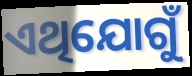
ଏଥିଯୋଗୁଁ